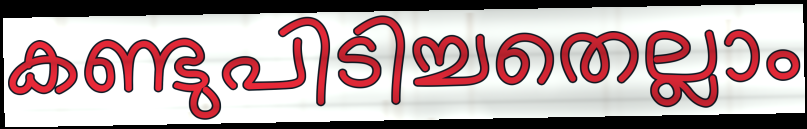
കണ്ടുപിടിച്ചതെല്ലാം